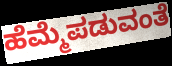
ಹೆಮ್ಮೆಪಡುವಂತೆ